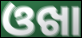
ଓଖା